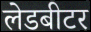
लेडबीटर